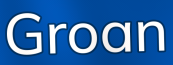
Groan